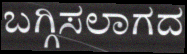
ಬಗ್ಗಿಸಲಾಗದ